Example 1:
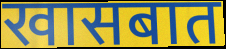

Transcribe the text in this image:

खासबात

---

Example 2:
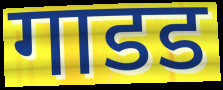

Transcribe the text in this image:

गाडड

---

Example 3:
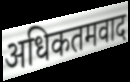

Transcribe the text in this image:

अधिकतमवाद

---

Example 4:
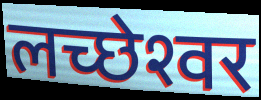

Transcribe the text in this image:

लच्छेश्वर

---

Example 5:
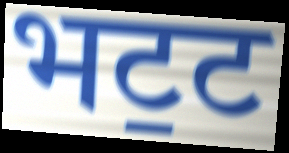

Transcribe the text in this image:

भट॒ट